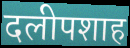
दलीपशाह